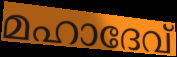
മഹാദേവ്